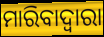
ମାରିବାଦ୍ୱାରା